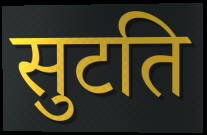
सुटति